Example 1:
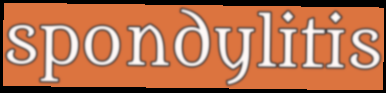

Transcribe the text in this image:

spondylitis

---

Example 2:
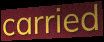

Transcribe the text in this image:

carried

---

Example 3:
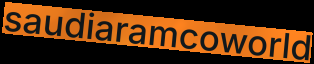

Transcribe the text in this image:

saudiaramcoworld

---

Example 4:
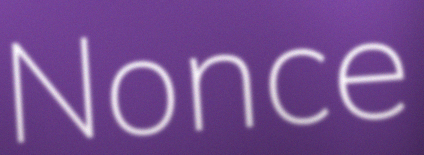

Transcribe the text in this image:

Nonce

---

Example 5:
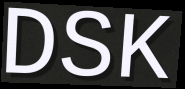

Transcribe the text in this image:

DSK